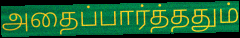
அதைப்பார்த்ததும்